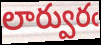
లార్వురఁ